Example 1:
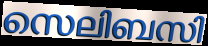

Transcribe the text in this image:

സെലിബസി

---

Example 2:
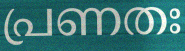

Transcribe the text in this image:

പ്രണതഃ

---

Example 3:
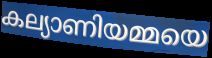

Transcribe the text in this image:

കല്യാണിയമ്മയെ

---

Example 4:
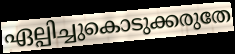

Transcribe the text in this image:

ഏല്പിച്ചുകൊടുക്കരുതേ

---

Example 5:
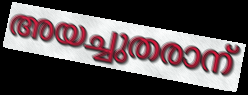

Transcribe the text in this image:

അയച്ചുതരാന്